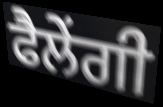
ਫੈਲੇਂਗੀ